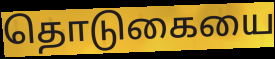
தொடுகையை